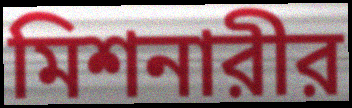
মিশনারীর